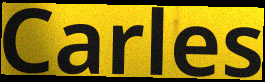
Carles